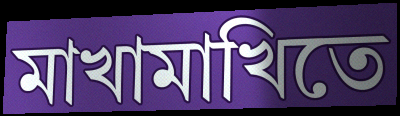
মাখামাখিতে